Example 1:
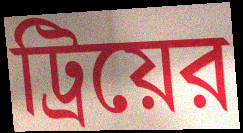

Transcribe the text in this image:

ট্রিয়ের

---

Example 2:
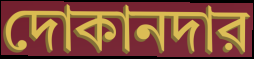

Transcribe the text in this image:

দোকানদার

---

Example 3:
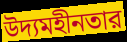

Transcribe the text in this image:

উদ্যমহীনতার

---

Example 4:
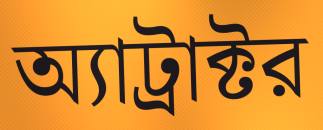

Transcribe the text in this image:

অ্যাট্রাক্টর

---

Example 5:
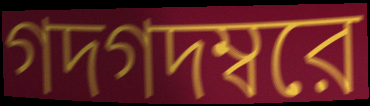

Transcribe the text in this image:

গদগদম্বরে